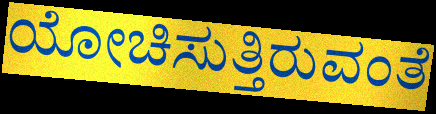
ಯೋಚಿಸುತ್ತಿರುವಂತೆ